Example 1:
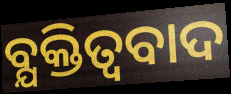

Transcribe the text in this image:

ବ୍ଯକ୍ତିତ୍ଵବାଦ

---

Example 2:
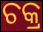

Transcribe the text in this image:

ଚକ୍ର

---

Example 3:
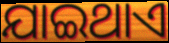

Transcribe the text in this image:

ଯାଇଥାଏ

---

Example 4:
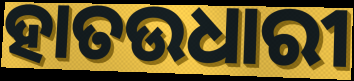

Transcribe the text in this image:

ହାତଉଧାରୀ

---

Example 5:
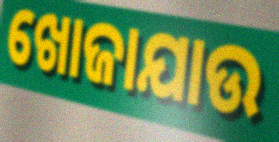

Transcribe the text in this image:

ଖୋଜାଯାଉ